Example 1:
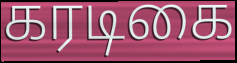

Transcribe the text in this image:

கரடிகை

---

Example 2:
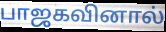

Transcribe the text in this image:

பாஜகவினால்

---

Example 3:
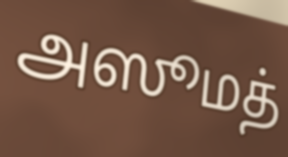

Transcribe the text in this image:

அஸூமத்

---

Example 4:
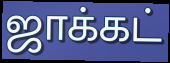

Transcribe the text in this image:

ஜாக்கட்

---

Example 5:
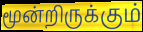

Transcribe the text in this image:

மூன்றிருக்கும்